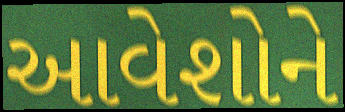
આવેશોને